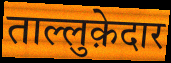
ताल्लुक़ेदार